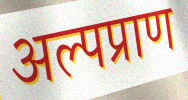
अल्पप्राण